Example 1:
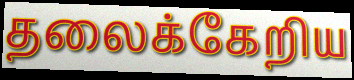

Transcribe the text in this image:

தலைக்கேறிய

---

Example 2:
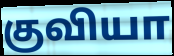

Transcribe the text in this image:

குவியா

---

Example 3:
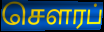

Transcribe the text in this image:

செளரப்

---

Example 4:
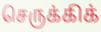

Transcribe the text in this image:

செருக்கிக்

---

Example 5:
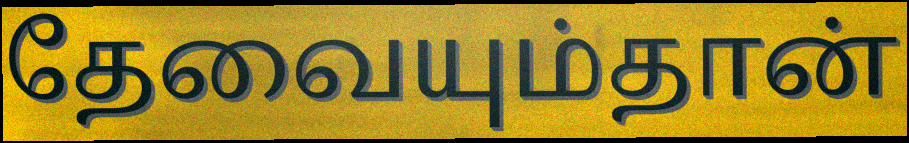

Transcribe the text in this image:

தேவையும்தான்